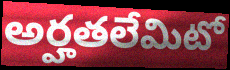
అర్హతలేమిటో